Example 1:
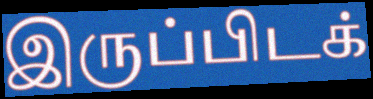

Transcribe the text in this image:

இருப்பிடக்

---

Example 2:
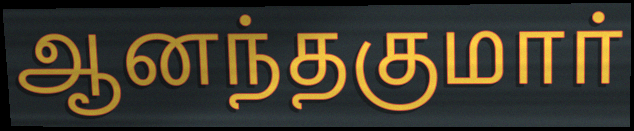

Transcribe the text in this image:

ஆனந்தகுமார்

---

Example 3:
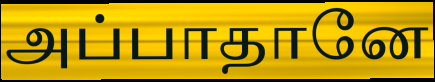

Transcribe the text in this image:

அப்பாதானே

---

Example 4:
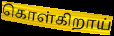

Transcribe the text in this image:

கொள்கிறாய்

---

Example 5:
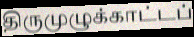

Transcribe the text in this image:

திருமுழுக்காட்டப்